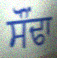
ਸੌਂਢਾ